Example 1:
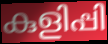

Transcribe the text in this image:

കുളിപ്പി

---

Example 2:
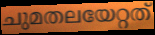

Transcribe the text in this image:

ചുമതലയേറ്റത്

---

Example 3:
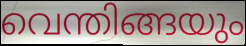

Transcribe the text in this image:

വെന്തിങ്ങയും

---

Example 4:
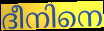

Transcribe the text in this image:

ദീനിനെ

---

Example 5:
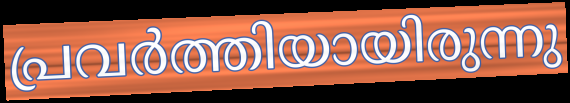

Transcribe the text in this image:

പ്രവർത്തിയായിരുന്നു